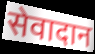
सेवादान